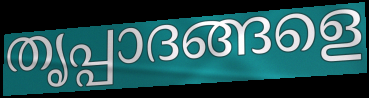
തൃപ്പാദങ്ങളെ